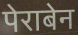
पेराबेन